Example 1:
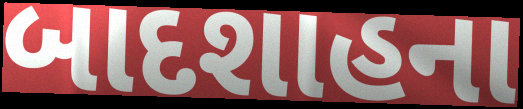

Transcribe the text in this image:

બાદશાહના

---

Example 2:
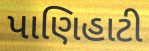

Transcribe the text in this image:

પાણિહાટી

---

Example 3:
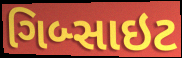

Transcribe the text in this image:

ગિબ્સાઇટ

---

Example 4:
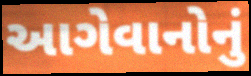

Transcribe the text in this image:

આગેવાનોનું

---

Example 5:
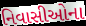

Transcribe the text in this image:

નિવાસીઓના